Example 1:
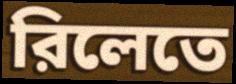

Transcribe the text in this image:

রিলেতে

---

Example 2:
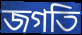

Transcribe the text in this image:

জগতি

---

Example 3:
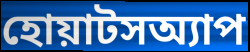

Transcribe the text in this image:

হোয়াটসঅ্যাপ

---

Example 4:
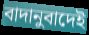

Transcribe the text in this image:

বাদানুবাদেই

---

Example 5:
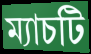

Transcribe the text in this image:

ম্যাচটি